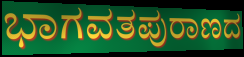
ಭಾಗವತಪುರಾಣದ